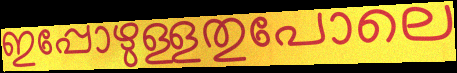
ഇപ്പോഴുള്ളതുപോലെ